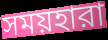
সময়হারা